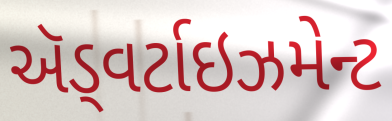
ઍડ્વર્ટાઇઝમેન્ટ